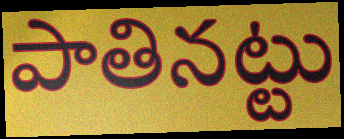
పాతినట్టు